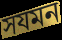
সযমন